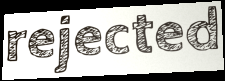
rejected